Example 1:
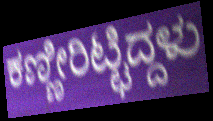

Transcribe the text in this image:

ಕಣ್ಣೀರಿಟ್ಟಿದ್ದಳು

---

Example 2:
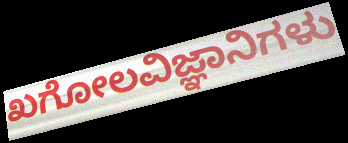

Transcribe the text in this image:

ಖಗೋಲವಿಜ್ಞಾನಿಗಳು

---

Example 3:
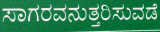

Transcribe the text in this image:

ಸಾಗರವನುತ್ತರಿಸುವಡೆ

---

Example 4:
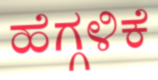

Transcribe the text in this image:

ಹೆಗ್ಗಳಿಕೆ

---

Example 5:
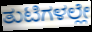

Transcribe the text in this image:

ತುಟಿಗಳಲ್ಲೇ